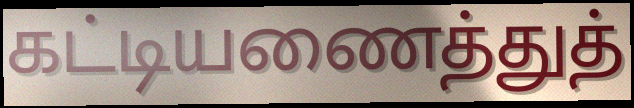
கட்டியணைத்துத்